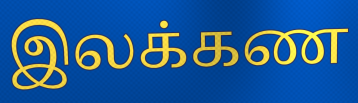
இலக்கண